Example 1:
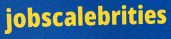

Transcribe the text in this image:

jobscalebrities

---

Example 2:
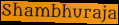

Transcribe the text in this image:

Shambhuraja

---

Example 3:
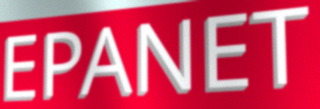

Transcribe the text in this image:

EPANET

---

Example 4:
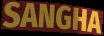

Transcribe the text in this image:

SANGHA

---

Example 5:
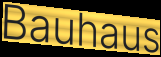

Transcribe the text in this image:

Bauhaus